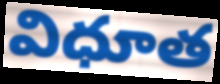
విధూత